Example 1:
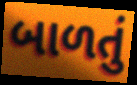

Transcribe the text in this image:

બાળતું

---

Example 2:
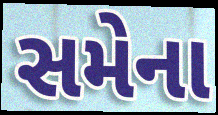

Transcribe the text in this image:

સમેના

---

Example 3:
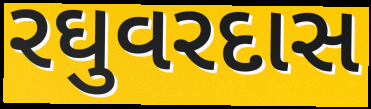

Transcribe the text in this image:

રઘુવરદાસ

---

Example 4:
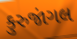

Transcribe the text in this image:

કુરુજાંગલ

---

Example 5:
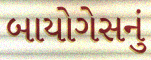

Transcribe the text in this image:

બાયોગેસનું